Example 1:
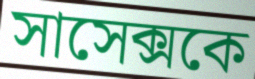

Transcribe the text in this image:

সাসেক্সকে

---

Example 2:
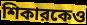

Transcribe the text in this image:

শিকারকেও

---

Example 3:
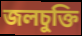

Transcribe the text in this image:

জলচুক্তি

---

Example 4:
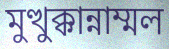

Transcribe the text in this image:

মুত্থুক্কান্নাম্মল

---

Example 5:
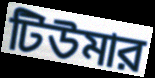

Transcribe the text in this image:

টিউমার